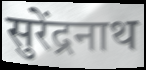
सुरेंद्रनाथ